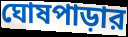
ঘোষপাড়ার